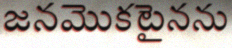
జనమొకటైనను